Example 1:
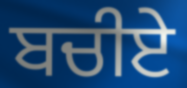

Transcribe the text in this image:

ਬਚੀਏ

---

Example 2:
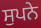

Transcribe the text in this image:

ਸੁਪਨੇ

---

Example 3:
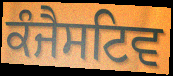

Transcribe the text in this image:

ਕੰਜੈਸਟਿਵ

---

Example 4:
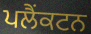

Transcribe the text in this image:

ਪਲੈਂਕਟਨ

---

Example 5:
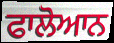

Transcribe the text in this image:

ਫਾਲੋਆਨ